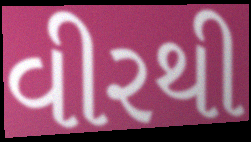
વીરથી